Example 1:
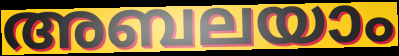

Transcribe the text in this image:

അബലയാം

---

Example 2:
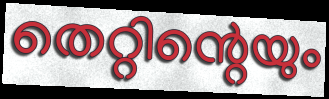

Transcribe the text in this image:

തെറ്റിന്റെയും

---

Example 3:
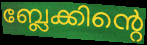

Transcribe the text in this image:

ബ്ലേക്കിന്റെ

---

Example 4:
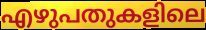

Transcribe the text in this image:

എഴുപതുകളിലെ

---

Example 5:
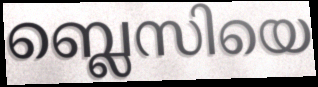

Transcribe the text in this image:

ബ്ലെസിയെ